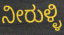
ನೀರುಳ್ಳಿ